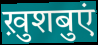
ख़ुशबुएं